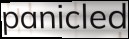
panicled